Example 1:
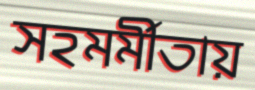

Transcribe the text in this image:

সহমর্মীতায়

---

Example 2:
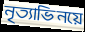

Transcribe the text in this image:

নৃত্যাভিনয়ে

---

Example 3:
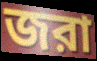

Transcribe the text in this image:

জরা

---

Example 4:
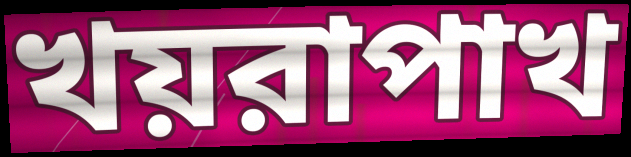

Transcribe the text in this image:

খয়রাপাখ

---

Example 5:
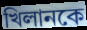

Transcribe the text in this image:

খিলানকে